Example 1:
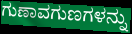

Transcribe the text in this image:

ಗುಣಾವಗುಣಗಳನ್ನು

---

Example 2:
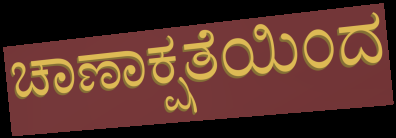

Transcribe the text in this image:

ಚಾಣಾಕ್ಷತೆಯಿಂದ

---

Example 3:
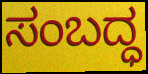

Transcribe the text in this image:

ಸಂಬದ್ಧ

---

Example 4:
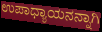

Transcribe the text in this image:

ಉಪಾಧ್ಯಾಯನನ್ನಾಗಿ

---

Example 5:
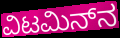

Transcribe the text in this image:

ವಿಟಮಿನ್‌ನ